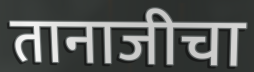
तानाजीचा